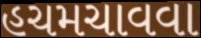
હચમચાવવા